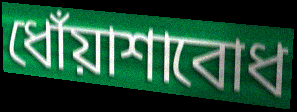
ধোঁয়াশাবোধ